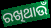
ରଖିଥାଉଁ